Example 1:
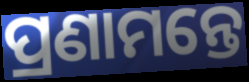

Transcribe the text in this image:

ପ୍ରଣାମନ୍ତେ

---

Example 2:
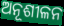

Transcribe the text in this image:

ଅନୂଶୀଳନ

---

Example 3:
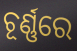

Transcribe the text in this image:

ଚୂର୍ଣ୍ଣରେ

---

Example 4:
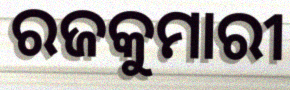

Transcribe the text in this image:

ରଜକୁମାରୀ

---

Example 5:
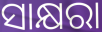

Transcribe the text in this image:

ସାକ୍ଷରା